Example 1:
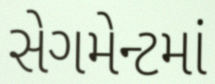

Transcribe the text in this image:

સેગમેન્ટમાં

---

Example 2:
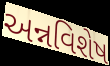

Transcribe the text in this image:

અન્નવિશેષ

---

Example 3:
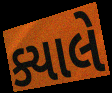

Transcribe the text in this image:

ક્યાલે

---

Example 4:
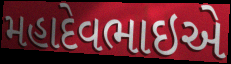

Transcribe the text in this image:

મહાદેવભાઇએ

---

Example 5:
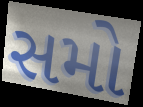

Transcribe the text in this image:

સમો